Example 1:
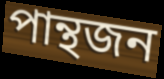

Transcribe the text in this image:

পান্থজন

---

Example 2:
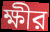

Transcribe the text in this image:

ক্ষীর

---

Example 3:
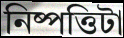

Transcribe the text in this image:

নিষ্পত্তিটা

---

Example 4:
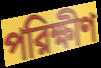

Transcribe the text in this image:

পরিক্ষীণ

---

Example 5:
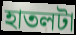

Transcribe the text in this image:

হাতলটা